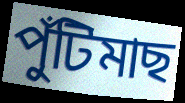
পুঁটিমাছ